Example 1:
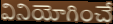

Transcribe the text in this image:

వినియోగించే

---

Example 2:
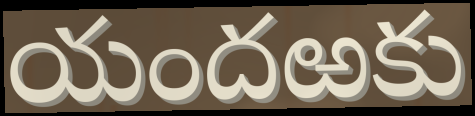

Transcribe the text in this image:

యందఱకు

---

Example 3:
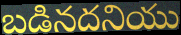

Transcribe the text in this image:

బడినదనియు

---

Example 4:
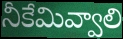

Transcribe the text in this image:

నీకేమివ్వాలి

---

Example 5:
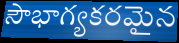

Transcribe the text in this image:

సౌభాగ్యకరమైన